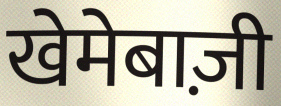
खेमेबाज़ी